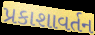
પ્રકાશાવર્તન